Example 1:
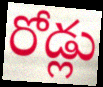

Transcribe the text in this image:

రోడ్లు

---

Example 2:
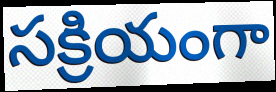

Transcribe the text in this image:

సక్రియంగా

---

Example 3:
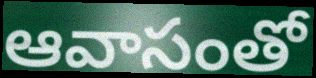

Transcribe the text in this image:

ఆవాసంతో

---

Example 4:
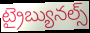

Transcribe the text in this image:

ట్రైబ్యునల్స్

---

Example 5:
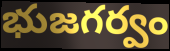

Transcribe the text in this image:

భుజగర్వం